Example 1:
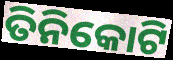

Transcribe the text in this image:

ତିନିକୋଟି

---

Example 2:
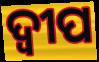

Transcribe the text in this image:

ଦ୍ବୀପ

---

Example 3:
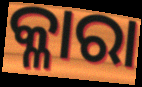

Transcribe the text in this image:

କ୍ଳାରା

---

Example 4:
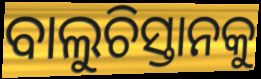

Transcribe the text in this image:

ବାଲୁଚିସ୍ତାନକୁ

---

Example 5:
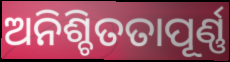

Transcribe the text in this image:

ଅନିଶ୍ଚିତତାପୂର୍ଣ୍ଣ